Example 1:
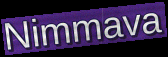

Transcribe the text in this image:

Nimmava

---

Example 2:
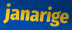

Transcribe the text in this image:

janarige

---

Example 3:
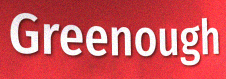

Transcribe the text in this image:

Greenough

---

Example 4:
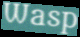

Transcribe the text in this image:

Wasp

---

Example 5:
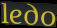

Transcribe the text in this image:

ledo